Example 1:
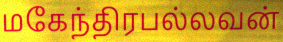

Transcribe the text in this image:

மகேந்திரபல்லவன்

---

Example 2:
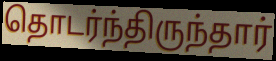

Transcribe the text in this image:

தொடர்ந்திருந்தார்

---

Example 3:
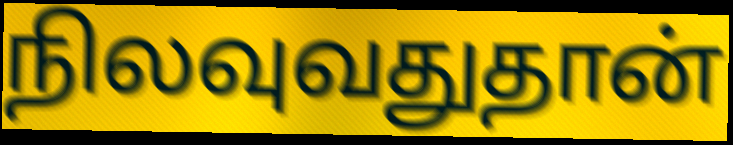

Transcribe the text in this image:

நிலவுவதுதான்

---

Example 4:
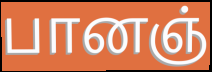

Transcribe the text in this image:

பானஞ்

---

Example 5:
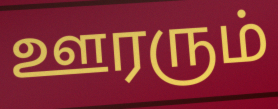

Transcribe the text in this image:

ஊரரும்